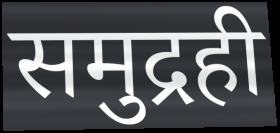
समुद्रही